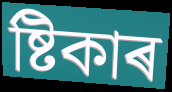
ষ্টিকাৰ